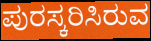
ಪುರಸ್ಕರಿಸಿರುವ